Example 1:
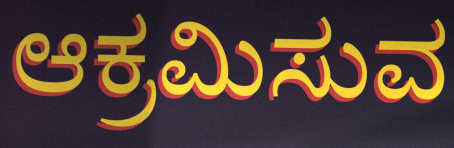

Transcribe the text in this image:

ಆಕ್ರಮಿಸುವ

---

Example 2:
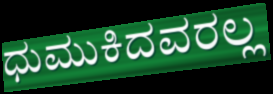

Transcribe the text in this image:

ಧುಮುಕಿದವರಲ್ಲ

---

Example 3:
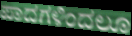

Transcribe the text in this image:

ಪಾದಗಳಿಂದಲೂ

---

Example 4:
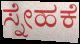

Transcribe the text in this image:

ಸ್ನೇಹಕೆ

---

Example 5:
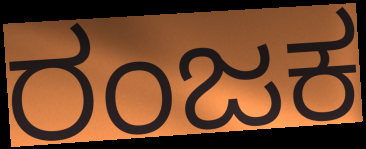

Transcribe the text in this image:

ರಂಜಕ